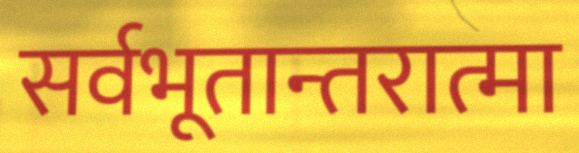
सर्वभूतान्तरात्मा